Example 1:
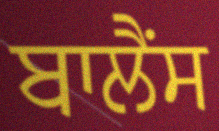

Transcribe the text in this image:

ਬਾਲੈਂਸ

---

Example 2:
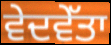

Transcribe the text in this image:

ਵੇਦਵੇੱਤਾ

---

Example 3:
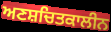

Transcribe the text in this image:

ਅਣਸ਼ਚਿਤਕਾਲੀਨ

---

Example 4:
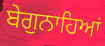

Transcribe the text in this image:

ਬੇਗੁਨਾਹਿਆਂ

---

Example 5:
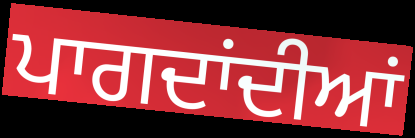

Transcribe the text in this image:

ਪਾਗਦਾਂਦੀਆਂ